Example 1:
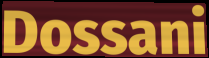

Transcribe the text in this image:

Dossani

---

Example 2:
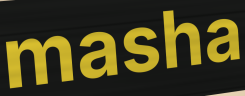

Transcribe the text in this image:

masha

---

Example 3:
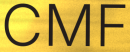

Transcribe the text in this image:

CMF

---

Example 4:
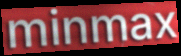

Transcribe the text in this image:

minmax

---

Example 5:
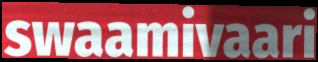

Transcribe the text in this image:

swaamivaari